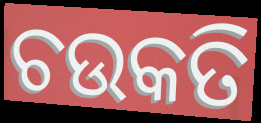
ଚଉକତି